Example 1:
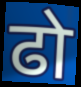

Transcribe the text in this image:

ढो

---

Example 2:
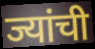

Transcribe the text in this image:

ज्यांची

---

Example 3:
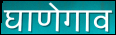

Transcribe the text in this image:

घाणेगाव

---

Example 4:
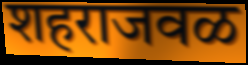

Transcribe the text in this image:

शहराजवळ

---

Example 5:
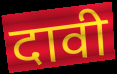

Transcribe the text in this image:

दावी